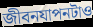
জীবনযাপনটাও